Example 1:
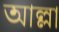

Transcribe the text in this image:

আল্লা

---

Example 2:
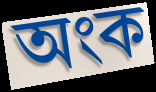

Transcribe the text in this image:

অংক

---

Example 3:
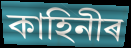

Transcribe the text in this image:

কাহিনীৰ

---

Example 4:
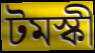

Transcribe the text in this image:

টমস্কী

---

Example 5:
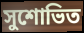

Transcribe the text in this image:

সুশোভিত